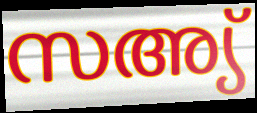
സഅ്യ്